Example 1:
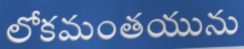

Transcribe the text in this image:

లోకమంతయును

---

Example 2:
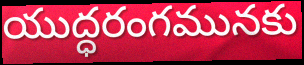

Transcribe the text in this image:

యుద్ధరంగమునకు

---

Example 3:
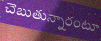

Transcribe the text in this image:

చెబుతున్నారంటూ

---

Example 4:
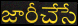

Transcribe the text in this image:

జారీచేసే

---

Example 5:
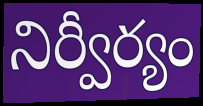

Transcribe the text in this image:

నిర్వీర్యం